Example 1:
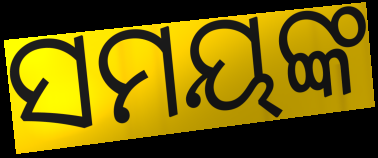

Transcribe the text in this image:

ସମୟଙ୍କ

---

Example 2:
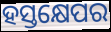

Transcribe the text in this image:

ହସ୍ତକ୍ଷେପର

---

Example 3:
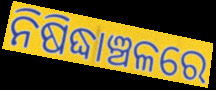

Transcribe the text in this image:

ନିଷିଦ୍ଧାଞ୍ଚଳରେ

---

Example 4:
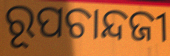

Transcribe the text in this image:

ରୂପଚାନ୍ଦଜୀ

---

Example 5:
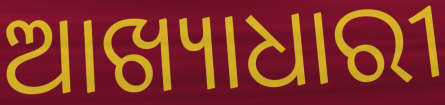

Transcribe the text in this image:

ଆଖ୍ୟାଧାରୀ